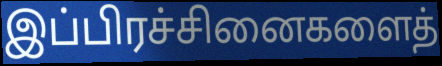
இப்பிரச்சினைகளைத்